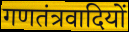
गणतंत्रवादियों